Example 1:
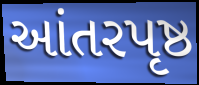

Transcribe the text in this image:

આંતરપૃષ્ઠ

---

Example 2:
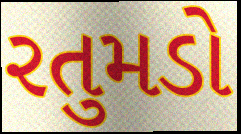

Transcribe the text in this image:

રતુમડો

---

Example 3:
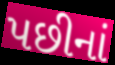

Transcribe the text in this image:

પછીનાં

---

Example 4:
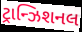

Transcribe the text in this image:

ટ્રાન્ઝિશનલ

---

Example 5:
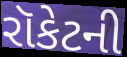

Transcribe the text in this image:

રૉકેટની